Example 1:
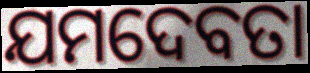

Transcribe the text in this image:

ଯମଦେବତା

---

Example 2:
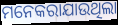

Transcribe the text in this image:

ମନେକରାଯାଉଥିଲା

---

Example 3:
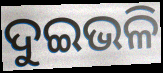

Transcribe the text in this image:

ଦୁଇଭଳି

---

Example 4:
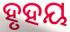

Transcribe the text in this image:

ହୃହୟ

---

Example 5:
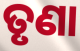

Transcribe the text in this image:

ତୃଣା